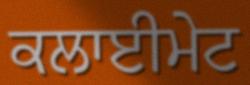
ਕਲਾਈਮੇਟ